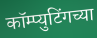
कॉम्प्युटिंगच्या